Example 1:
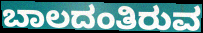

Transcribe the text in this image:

ಬಾಲದಂತಿರುವ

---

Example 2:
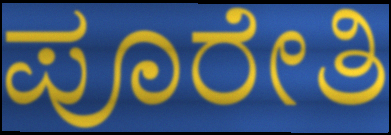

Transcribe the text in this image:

ಪೂರೇತಿ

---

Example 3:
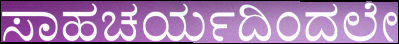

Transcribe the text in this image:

ಸಾಹಚರ್ಯದಿಂದಲೇ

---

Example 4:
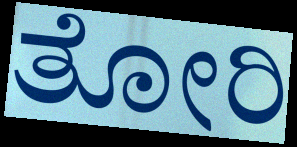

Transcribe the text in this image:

ತೋರಿ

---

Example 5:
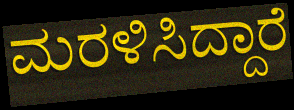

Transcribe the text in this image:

ಮರಳಿಸಿದ್ದಾರೆ